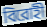
বিরোহী